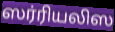
ஸர்ரியலிஸ